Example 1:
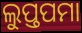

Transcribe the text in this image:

ଲୁପ୍ତପମା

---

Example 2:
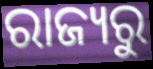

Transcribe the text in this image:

ରାଜ୍ୟରୁ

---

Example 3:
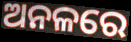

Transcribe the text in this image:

ଅନଳରେ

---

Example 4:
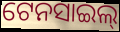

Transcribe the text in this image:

ଟେନସାଇଲ୍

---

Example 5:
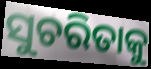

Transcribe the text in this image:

ସୁଚରିତାକୁ